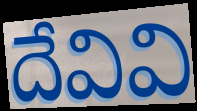
దేవివి